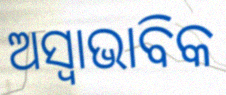
ଅସ୍ଵାଭାବିକ